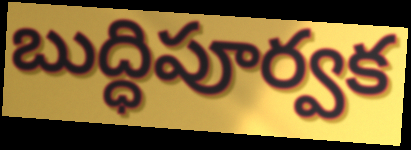
బుద్ధిపూర్వక